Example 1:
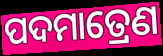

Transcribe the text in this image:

ପଦମାତ୍ରେଣ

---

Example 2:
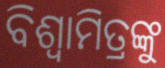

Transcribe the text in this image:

ବିଶ୍ଵାମିତ୍ରଙ୍କୁ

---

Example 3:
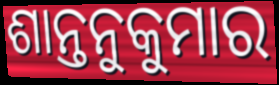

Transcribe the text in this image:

ଶାନ୍ତନୁକୁମାର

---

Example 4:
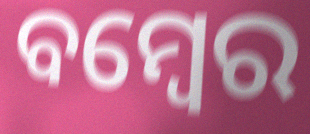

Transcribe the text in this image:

ବମ୍ବେର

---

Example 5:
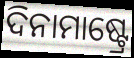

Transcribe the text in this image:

ଦିନାମାଷ୍ଟ୍ରେ